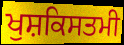
ਖੁਸ਼ਕਿਸਤਮੀ